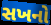
સખનો